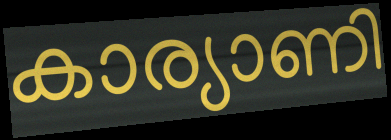
കാര്യാണി